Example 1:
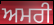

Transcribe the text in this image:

ਅਮਰੀ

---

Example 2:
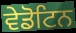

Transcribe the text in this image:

ਵੇਡੋਟਿਨ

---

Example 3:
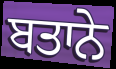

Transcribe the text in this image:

ਬਤਾਨੇ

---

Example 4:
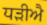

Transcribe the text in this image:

ਧੜੀਐ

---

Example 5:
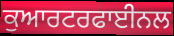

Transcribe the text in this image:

ਕੁਆਰਟਰਫਾਈਨਲ